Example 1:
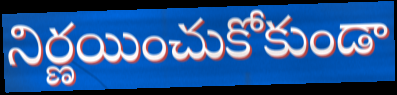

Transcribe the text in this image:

నిర్ణయించుకోకుండా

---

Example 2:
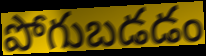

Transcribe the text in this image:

పోగుబడడం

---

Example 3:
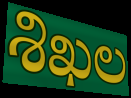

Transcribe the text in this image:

శిఖల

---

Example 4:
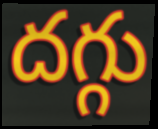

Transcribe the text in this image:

దగ్గు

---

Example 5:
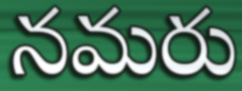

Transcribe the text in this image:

నమరు